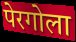
पेरगोला